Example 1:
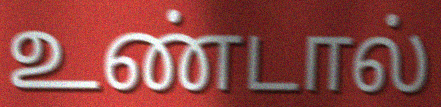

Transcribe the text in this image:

உண்டால்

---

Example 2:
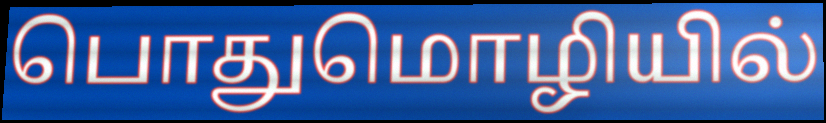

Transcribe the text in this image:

பொதுமொழியில்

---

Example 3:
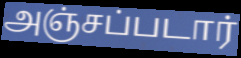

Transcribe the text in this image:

அஞ்சப்படார்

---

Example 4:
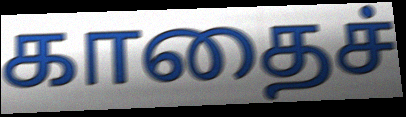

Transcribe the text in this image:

காதைச்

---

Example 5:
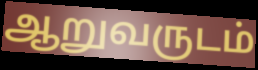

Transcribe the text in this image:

ஆறுவருடம்